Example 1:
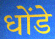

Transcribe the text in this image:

धोंडे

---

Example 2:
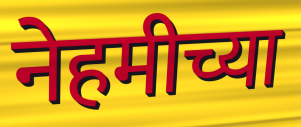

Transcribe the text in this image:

नेहमीच्या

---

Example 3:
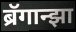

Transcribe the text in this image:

ब्रॅगान्झा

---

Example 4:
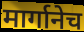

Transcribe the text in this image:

मार्गानेच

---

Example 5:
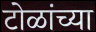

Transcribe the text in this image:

टोळांच्या